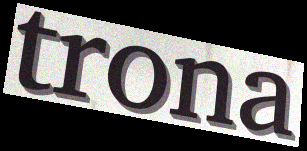
trona